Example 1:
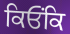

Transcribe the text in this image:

ਕਿਓਂਕਿ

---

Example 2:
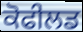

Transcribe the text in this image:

ਕੋਫੀਲਡ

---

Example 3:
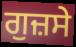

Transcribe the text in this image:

ਗੁਜ਼ਸੇ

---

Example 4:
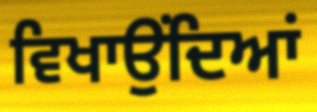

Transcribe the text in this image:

ਵਿਖਾਉਂਦਿਆਂ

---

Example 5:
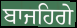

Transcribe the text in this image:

ਬਾਜਹਿਗੇ